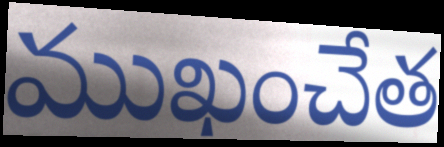
ముఖంచేత